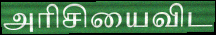
அரிசியைவிட